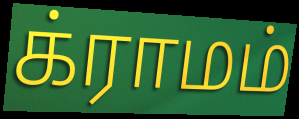
க்ராமம்